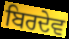
ਬਿਰਦੇਵ